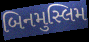
બિનમુસ્લિમ